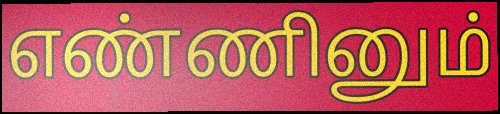
எண்ணினும்